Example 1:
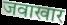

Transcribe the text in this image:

जवाखार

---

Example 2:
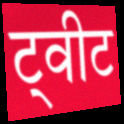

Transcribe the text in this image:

ट्‍वीट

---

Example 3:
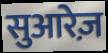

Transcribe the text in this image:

सुआरेज़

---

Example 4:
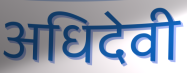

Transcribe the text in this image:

अधिदेवी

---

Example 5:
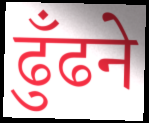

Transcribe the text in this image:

ढुँढने